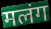
मलंग